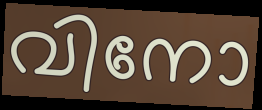
വിനോ